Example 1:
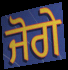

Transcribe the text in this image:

ਜੋਗੇ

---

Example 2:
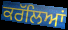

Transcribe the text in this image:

ਕਰੱਲਿਆਂ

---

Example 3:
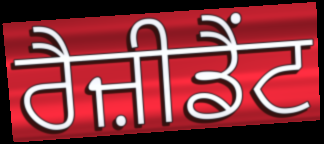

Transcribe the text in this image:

ਰੈਜ਼ੀਡੈਂਟ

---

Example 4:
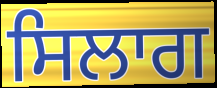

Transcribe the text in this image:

ਸਿਲਾਗ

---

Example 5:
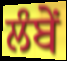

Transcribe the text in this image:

ਲੰਬੇਂ